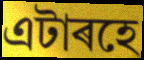
এটাৰহে